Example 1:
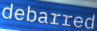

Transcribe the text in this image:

debarred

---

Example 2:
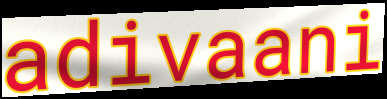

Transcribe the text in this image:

adivaani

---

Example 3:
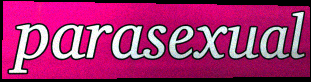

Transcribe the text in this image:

parasexual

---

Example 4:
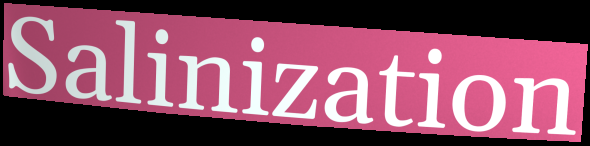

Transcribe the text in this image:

Salinization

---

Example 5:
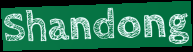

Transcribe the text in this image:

Shandong